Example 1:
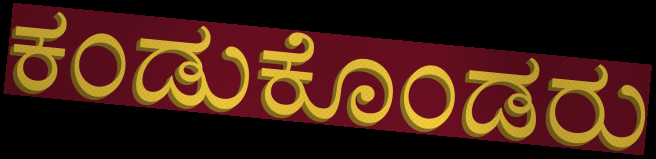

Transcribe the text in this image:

ಕಂಡುಕೊಂಡರು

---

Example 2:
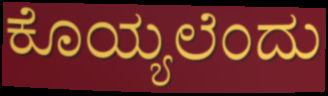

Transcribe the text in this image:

ಕೊಯ್ಯಲೆಂದು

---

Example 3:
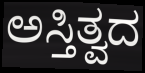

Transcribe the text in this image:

ಅಸ್ತಿತ್ವದ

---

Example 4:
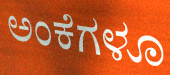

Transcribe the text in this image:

ಅಂಕೆಗಳೂ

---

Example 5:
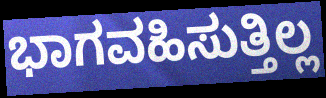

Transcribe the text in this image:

ಭಾಗವಹಿಸುತ್ತಿಲ್ಲ